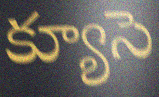
క్యూసె